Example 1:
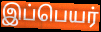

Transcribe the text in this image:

இப்பெயர்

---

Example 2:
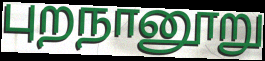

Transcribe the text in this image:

புறநானூறு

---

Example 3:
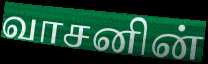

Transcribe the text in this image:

வாசனின்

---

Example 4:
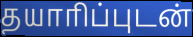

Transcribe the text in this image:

தயாரிப்புடன்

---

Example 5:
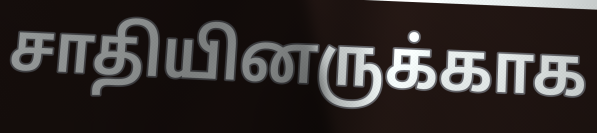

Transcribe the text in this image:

சாதியினருக்காக